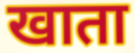
खाता